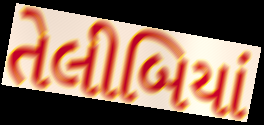
તેલીબિયાં